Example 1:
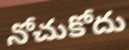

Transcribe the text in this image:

నోచుకోదు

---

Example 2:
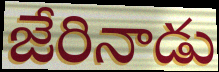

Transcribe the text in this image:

జేరినాడు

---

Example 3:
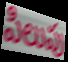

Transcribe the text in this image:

పిలుపు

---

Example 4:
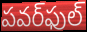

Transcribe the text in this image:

పవర్‌ఫుల్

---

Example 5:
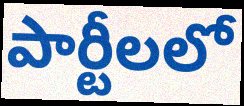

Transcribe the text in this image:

పార్టీలలో